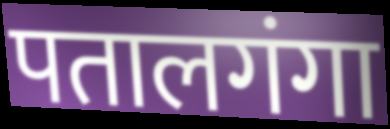
पतालगंगा